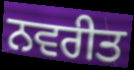
ਨਵਰੀਤ